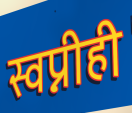
स्वप्नीही